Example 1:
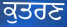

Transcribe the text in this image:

ਕੁਤਰਣ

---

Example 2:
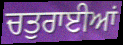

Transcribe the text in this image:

ਚਤੁਰਾਈਆਂ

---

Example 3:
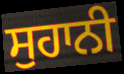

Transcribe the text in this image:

ਸੁਹਾਨੀ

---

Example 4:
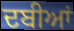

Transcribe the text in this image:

ਦਬੀਆਂ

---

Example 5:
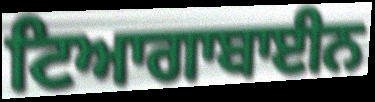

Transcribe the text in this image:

ਟਿਆਗਾਬਾਈਨ